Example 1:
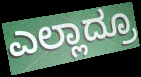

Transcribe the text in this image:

ಎಲ್ಲಾದ್ರೂ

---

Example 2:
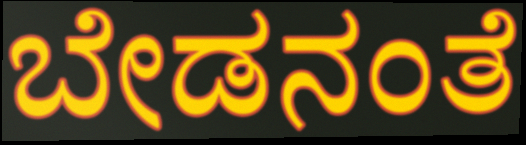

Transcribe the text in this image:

ಬೇಡನಂತೆ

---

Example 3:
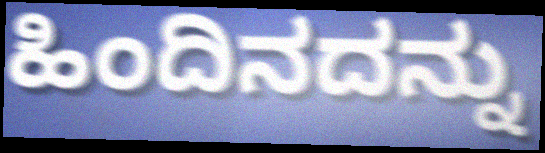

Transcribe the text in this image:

ಹಿಂದಿನದನ್ನು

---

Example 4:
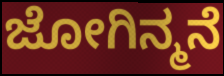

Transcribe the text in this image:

ಜೋಗಿನ್ಮನೆ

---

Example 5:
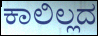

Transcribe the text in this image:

ಕಾಲಿಲ್ಲದ